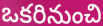
ఒకరినుంచి